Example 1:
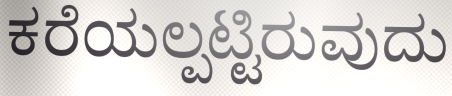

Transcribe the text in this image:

ಕರೆಯಲ್ಪಟ್ಟಿರುವುದು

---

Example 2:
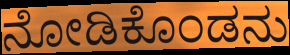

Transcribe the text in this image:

ನೋಡಿಕೊಂಡನು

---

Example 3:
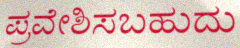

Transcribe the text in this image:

ಪ್ರವೇಶಿಸಬಹುದು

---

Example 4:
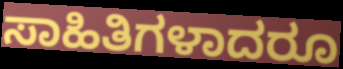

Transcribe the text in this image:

ಸಾಹಿತಿಗಳಾದರೂ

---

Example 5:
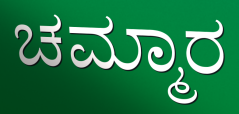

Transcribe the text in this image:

ಚಮ್ಮಾರ